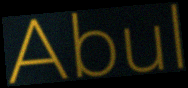
Abul